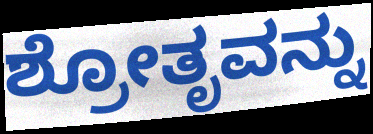
ಶ್ರೋತೃವನ್ನು